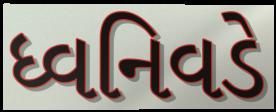
ધ્વનિવડે